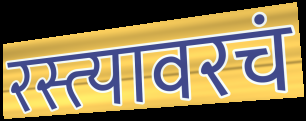
रस्त्यावरचं